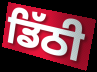
ਡਿੱਠੀ